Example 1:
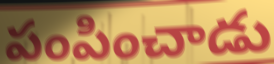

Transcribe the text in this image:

పంపించాడు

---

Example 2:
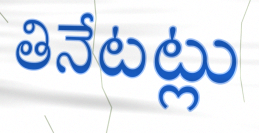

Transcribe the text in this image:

తినేటట్లు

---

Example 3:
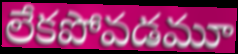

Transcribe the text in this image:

లేకపోవడమూ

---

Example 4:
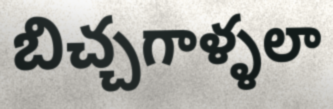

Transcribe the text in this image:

బిచ్చగాళ్ళలా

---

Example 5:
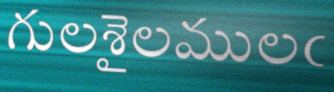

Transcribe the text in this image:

గులశైలములఁ